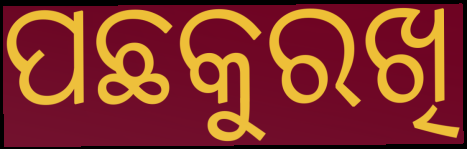
ପଛକୁରଖି